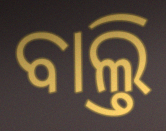
ବାଲ୍ତି